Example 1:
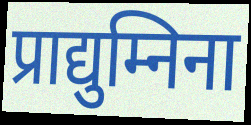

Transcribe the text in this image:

प्राद्युम्निना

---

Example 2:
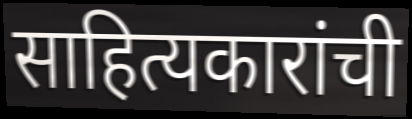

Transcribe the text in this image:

साहित्यकारांची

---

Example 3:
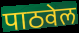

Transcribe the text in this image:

पाठवेल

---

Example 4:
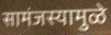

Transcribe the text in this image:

सामंजस्यामुळे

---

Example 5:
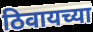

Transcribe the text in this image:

ठिवायच्या